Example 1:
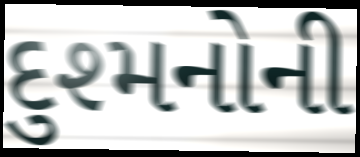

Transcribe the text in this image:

દુશ્મનોની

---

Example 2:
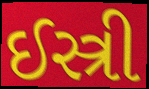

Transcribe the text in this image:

ઈસ્ત્રી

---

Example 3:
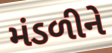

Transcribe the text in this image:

મંડળીને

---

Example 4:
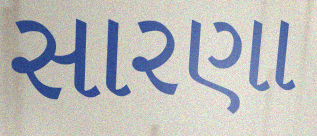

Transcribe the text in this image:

સારણા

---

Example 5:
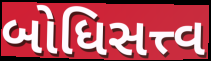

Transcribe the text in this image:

બોધિસત્ત્વ